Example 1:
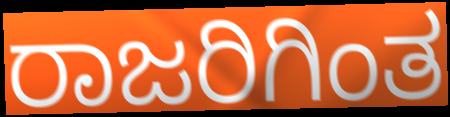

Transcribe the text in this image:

ರಾಜರಿಗಿಂತ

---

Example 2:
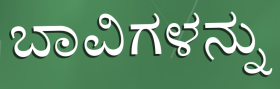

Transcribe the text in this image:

ಬಾವಿಗಳನ್ನು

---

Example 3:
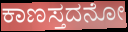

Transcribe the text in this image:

ಕಾಣಸ್ತದನೋ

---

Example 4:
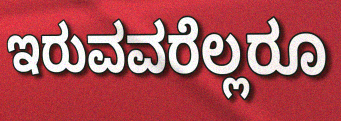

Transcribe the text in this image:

ಇರುವವರೆಲ್ಲರೂ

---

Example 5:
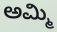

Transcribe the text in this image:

ಅಮ್ಮಿ